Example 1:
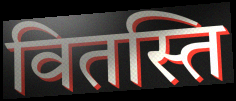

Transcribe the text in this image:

वितस्ति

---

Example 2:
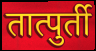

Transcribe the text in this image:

तात्पुर्ती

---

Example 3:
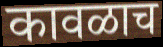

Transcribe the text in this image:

कावळाच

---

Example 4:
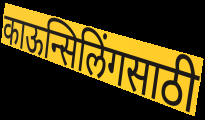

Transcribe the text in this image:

काऊन्सिलिंगसाठी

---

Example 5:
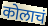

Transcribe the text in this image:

कोलाचं